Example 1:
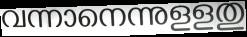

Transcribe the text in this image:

വന്നാനെന്നുളളതു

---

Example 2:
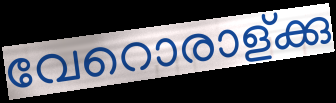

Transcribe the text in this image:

വേറൊരാള്ക്കു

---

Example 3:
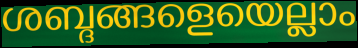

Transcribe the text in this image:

ശബ്ദങ്ങളെയെല്ലാം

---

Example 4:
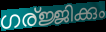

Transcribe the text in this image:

ഗര്ജ്ജിക്കും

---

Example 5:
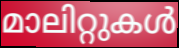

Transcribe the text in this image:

മാലിറ്റുകൾ